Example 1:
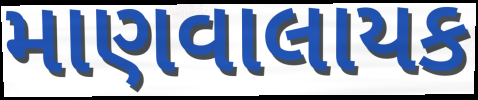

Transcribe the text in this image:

માણવાલાયક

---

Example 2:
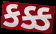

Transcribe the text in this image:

કક્ક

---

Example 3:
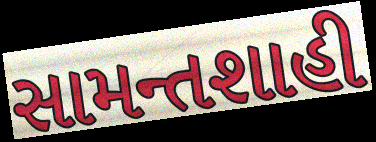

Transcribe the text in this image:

સામન્તશાહી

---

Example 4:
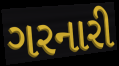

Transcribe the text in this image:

ગરનારી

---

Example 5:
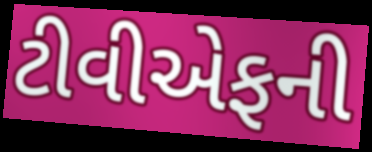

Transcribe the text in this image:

ટીવીએફની